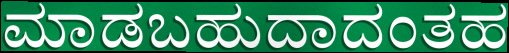
ಮಾಡಬಹುದಾದಂತಹ